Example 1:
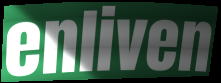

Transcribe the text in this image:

enliven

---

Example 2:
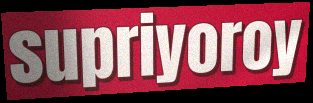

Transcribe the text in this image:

supriyoroy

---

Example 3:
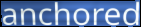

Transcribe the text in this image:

anchored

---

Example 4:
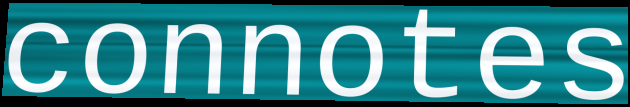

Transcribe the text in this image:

connotes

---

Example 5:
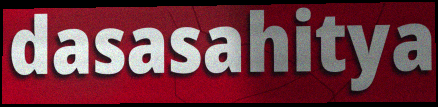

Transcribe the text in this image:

dasasahitya